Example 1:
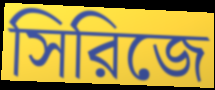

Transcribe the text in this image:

সিরিজে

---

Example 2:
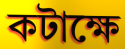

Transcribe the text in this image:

কটাক্ষে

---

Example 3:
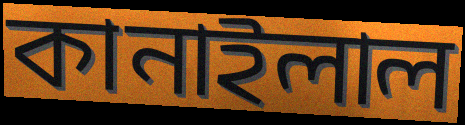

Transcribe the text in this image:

কানাইলাল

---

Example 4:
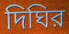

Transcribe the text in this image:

দিঘির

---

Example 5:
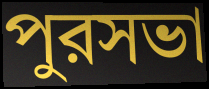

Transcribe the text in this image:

পুরসভা